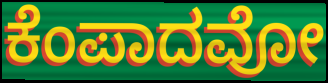
ಕೆಂಪಾದವೋ